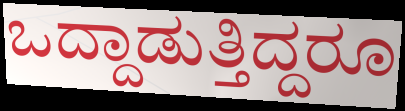
ಒದ್ದಾಡುತ್ತಿದ್ದರೂ